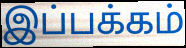
இப்பக்கம்